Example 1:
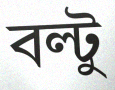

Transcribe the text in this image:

বল্টু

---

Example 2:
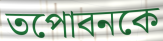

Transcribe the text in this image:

তপোবনকে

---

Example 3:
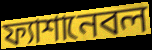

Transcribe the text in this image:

ফ্যাশানেবল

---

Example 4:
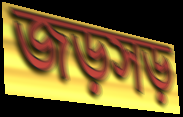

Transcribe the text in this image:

জড়সড়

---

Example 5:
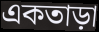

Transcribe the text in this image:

একতাড়া